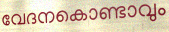
വേദനകൊണ്ടാവും